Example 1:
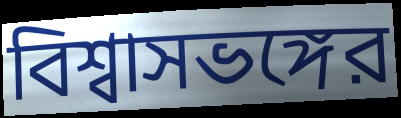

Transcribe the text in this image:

বিশ্বাসভঙ্গের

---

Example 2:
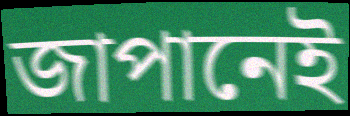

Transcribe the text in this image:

জাপানেই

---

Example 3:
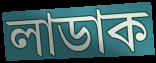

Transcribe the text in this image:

লাডাক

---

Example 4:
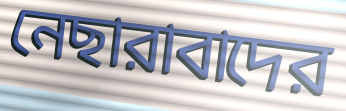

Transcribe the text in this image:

নেছারাবাদের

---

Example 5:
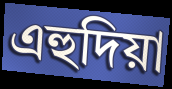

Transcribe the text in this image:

এহুদিয়া